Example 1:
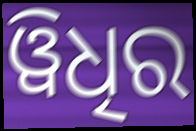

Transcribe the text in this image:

ୱିଧିର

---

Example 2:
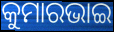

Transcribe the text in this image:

କୁମାରଭାଇ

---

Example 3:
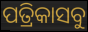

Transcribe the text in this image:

ପତ୍ରିକାସବୁ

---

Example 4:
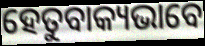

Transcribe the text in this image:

ହେତୁବାକ୍ୟଭାବେ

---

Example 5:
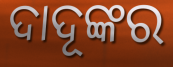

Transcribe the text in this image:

ଦାଦୂଙ୍କର